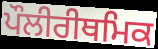
ਪੌਲੀਰੀਥਮਿਕ